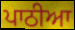
ਪਾਠੀਆ